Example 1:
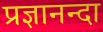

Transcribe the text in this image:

प्रज्ञानन्दा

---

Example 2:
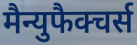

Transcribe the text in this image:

मैन्युफैक्चर्स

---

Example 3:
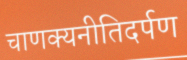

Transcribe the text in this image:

चाणक्यनीतिदर्पण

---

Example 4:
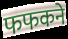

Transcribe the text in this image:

फफकने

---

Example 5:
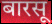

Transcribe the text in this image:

बारसू